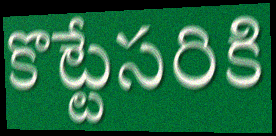
కొట్టేసరికి